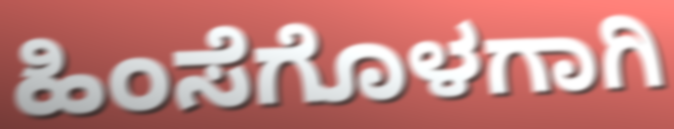
ಹಿಂಸೆಗೊಳಗಾಗಿ